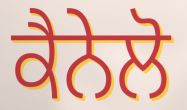
ਕੈਨੇਲੋ